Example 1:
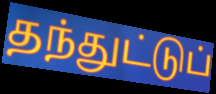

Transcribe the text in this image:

தந்துட்டுப்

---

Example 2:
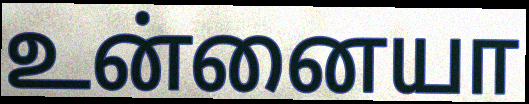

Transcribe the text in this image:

உன்னையா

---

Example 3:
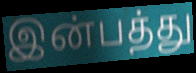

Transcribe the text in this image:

இன்பத்து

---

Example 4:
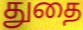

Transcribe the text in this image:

துதை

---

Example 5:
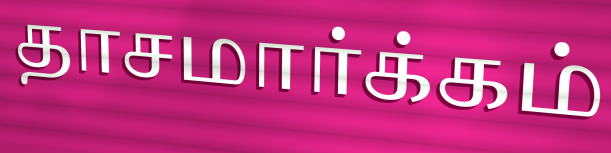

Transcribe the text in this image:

தாசமார்க்கம்